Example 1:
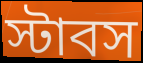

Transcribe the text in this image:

স্টাবস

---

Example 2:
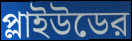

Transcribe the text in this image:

প্লাইউডের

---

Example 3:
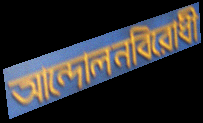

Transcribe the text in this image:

আন্দোলনবিরোধী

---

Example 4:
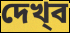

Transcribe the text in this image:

দেখ্‌ব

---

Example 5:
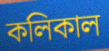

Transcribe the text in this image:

কলিকাল